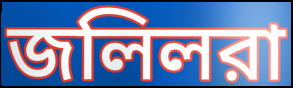
জলিলরা